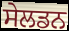
ਸੇਲਡਨ